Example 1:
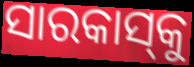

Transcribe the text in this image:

ସାରକାସ୍‌କୁ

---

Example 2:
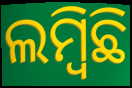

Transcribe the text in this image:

ଲମ୍ବିଛି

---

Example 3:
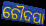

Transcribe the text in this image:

ଚୌଦପା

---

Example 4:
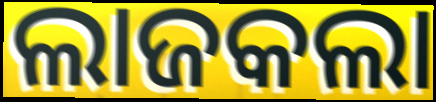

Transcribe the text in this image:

ଲାଜକଲା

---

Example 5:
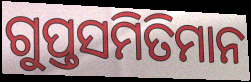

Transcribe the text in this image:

ଗୁପ୍ତସମିତିମାନ